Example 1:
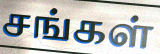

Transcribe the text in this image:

சங்கள்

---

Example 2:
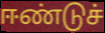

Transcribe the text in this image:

ஈண்டுச்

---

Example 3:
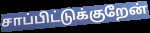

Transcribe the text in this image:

சாப்பிட்டுக்குறேன்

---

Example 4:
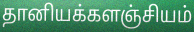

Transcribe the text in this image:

தானியக்களஞ்சியம்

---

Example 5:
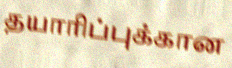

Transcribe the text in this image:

தயாரிப்புக்கான